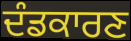
ਦੰਡਕਾਰਣ